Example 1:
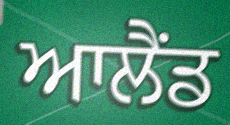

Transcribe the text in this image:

ਆਲੈਂਡ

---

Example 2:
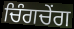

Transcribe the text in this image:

ਚਿੰਗਚੇਂਗ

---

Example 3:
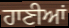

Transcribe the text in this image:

ਹਾਣੀਆਂ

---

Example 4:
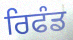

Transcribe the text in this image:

ਰਿਫੰਡ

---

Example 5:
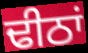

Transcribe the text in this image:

ਢੀਠਾਂ